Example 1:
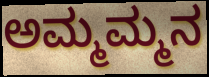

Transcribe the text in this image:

ಅಮ್ಮಮ್ಮನ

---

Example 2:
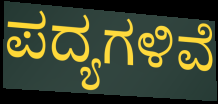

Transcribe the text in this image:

ಪದ್ಯಗಳಿವೆ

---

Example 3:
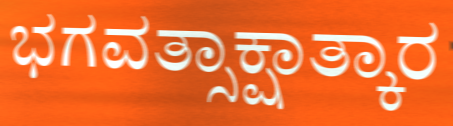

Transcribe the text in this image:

ಭಗವತ್ಸಾಕ್ಷಾತ್ಕಾರ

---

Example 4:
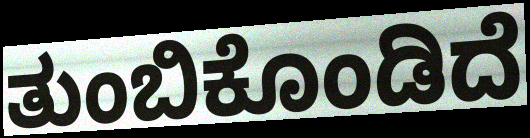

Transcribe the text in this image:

ತುಂಬಿಕೊಂಡಿದೆ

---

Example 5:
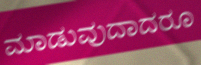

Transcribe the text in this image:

ಮಾಡುವುದಾದರೂ